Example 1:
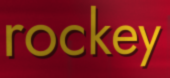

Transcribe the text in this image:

rockey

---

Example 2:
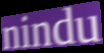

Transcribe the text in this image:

nindu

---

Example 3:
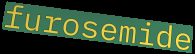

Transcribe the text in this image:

furosemide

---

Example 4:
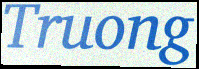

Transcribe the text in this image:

Truong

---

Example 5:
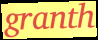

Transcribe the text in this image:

granth